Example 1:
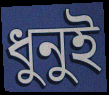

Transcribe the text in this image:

ধুনুই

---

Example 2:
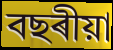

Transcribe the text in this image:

বছৰীয়া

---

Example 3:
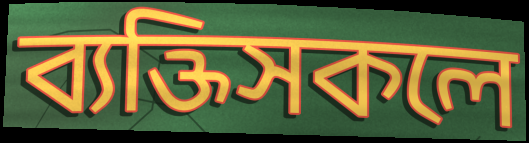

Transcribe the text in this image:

ব্যক্তিসকলে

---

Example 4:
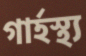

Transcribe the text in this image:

গাৰ্হস্থ্য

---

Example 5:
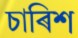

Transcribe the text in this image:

চাৰিশ